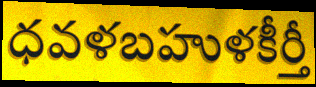
ధవళబహుళకీర్తీ